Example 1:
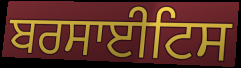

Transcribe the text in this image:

ਬਰਸਾਈਟਿਸ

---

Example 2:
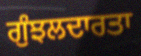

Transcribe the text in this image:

ਗੁੰਝਲਦਾਰਤਾ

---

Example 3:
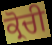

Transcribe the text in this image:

ਕ੍ਰੋਚੀ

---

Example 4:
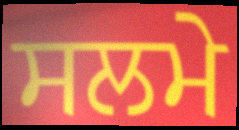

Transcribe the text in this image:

ਸਲਮੇ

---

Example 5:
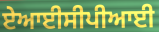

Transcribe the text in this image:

ਏਆਈਸੀਪੀਆਈ